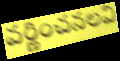
వర్ణించనలవి